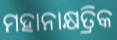
ମହାନାକ୍ଷତ୍ରିକ